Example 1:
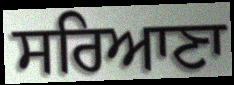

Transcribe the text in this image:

ਸਰਿਆਣਾ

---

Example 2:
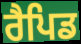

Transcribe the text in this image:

ਰੈਪਿਡ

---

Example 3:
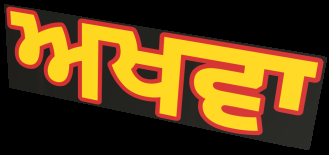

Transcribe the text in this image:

ਅਖਵਾ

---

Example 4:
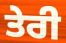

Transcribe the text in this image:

ਤੇਰੀ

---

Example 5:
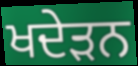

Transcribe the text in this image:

ਖਦੇੜਨ